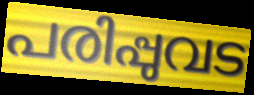
പരിപ്പുവട